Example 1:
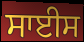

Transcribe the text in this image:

ਸਾਈਸ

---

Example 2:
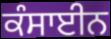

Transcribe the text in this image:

ਕੰਸਾਈਨ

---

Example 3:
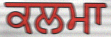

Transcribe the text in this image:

ਕਲਮਾ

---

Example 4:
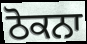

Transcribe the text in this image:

ਠੋਕਨਾ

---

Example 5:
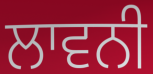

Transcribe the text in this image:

ਲਾਵਨੀ